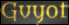
Guyot